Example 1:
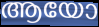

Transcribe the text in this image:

ആയോ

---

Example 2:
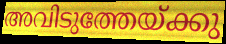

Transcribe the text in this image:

അവിടുത്തേയ്ക്കു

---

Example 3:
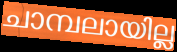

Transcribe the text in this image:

ചാമ്പലായില്ല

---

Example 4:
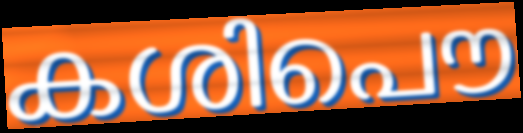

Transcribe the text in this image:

കശിപൌ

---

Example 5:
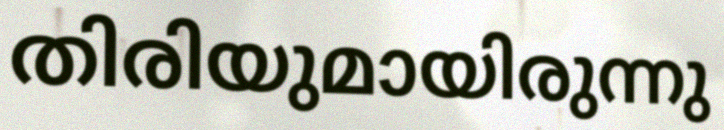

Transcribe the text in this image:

തിരിയുമായിരുന്നു